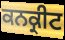
ਕਨਕ੍ਰੀਟ